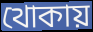
থোকায়